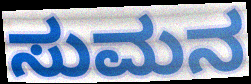
ಸುಮನ